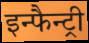
इन्फैन्ट्री